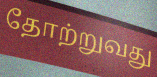
தோற்றுவது